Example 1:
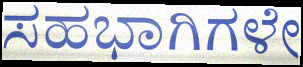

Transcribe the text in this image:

ಸಹಭಾಗಿಗಳೇ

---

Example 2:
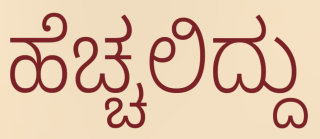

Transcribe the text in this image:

ಹೆಚ್ಚಲಿದ್ದು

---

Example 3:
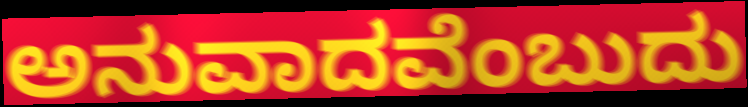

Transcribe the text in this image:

ಅನುವಾದವೆಂಬುದು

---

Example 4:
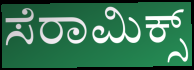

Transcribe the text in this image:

ಸೆರಾಮಿಕ್ಸ್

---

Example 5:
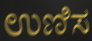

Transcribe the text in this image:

ಉಣಿಸ